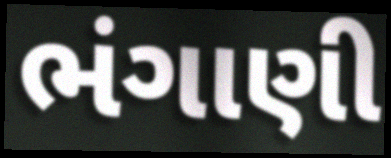
ભંગાણી